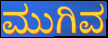
ಮುಗಿವ